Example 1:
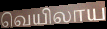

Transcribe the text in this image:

வெயிலாய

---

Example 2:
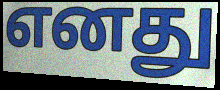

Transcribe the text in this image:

எனது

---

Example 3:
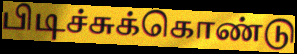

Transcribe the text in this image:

பிடிச்சுக்கொண்டு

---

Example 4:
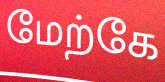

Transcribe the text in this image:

மேற்கே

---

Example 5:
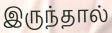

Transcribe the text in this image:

இருந்தால்